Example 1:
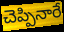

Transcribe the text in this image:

చెప్పినారే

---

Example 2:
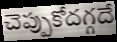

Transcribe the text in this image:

చెప్పుకోదగ్గదే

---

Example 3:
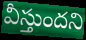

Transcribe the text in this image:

వీస్తుందని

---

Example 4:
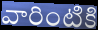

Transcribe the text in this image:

వారింటికి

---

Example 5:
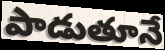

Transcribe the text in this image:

పాడుతూనే